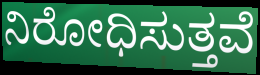
ನಿರೋಧಿಸುತ್ತವೆ